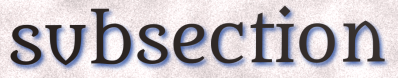
subsection